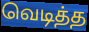
வெடித்த